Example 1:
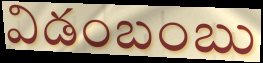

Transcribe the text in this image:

విడంబంబు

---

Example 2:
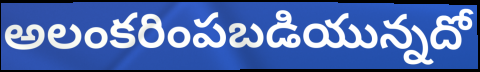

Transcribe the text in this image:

అలంకరింపబడియున్నదో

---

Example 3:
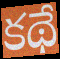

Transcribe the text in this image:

కథే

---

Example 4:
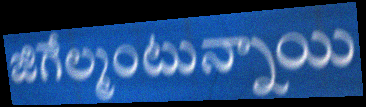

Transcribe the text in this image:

జిగేల్మంటున్నాయి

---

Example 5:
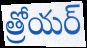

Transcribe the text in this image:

త్రోయర్